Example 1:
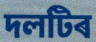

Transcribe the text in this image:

দলটিৰ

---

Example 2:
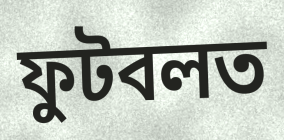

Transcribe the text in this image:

ফুটবলত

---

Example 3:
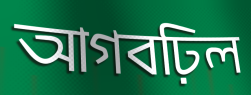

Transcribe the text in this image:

আগবঢ়িল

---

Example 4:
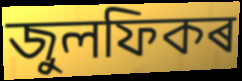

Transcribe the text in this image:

জুলফিকৰ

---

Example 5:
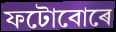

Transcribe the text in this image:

ফটোবোৰে